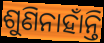
ଶୁଣିନାହାଁନ୍ତି